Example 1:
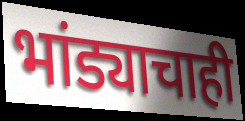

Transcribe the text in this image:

भांड्याचाही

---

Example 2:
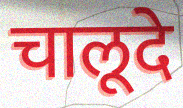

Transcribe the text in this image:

चालूदे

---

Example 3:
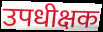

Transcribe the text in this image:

उपधीक्षक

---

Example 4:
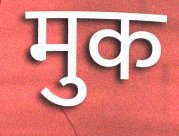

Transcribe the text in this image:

मुक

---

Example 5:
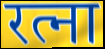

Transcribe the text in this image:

रत्ना